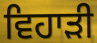
ਵਿਹਾੜੀ